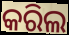
କରିଲ